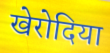
खेरोदिया